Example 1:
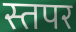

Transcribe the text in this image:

स्तपर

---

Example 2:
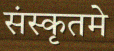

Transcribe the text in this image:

संस्कृतमे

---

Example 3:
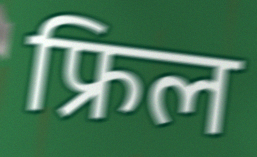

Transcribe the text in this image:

फ्रिल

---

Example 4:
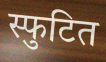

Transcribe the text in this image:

स्फुटित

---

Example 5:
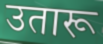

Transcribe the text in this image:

उतारू